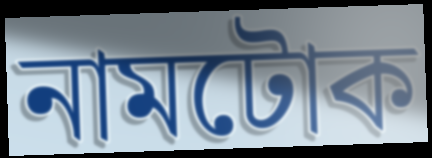
নামটোক